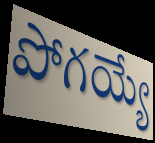
పోగయ్యే